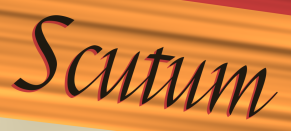
Scutum